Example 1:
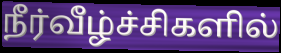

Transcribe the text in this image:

நீர்வீழ்ச்சிகளில்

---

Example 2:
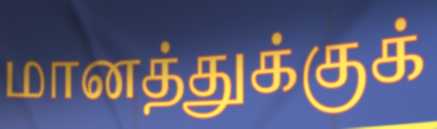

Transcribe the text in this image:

மானத்துக்குக்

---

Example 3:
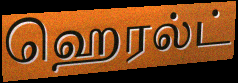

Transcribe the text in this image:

ஹெரல்ட்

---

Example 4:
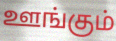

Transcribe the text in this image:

ஊங்கும்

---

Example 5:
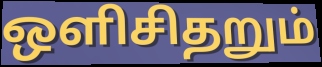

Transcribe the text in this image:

ஒளிசிதறும்